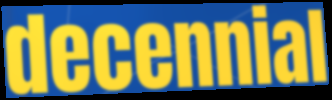
decennial